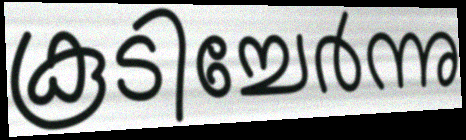
കൂടിച്ചേർന്നു